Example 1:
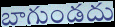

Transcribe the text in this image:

బాగుండదు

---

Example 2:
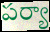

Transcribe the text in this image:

పర్యా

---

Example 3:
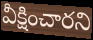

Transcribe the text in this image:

వీక్షించారని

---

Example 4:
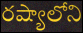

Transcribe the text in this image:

రష్యాలోని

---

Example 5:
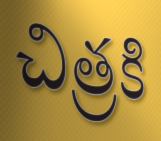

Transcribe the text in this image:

చిత్రకి